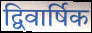
द्विवार्षिक